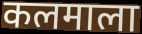
कलमाला